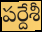
పర్దేశీ